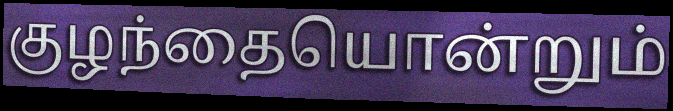
குழந்தையொன்றும்